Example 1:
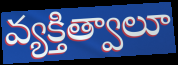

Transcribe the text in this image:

వ్యక్తిత్వాలూ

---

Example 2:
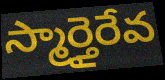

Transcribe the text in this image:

స్మార్తైరేవ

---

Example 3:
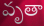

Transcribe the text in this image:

వృతా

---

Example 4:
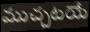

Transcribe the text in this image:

ముచ్చటయే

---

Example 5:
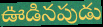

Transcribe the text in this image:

ఊడినపుడు